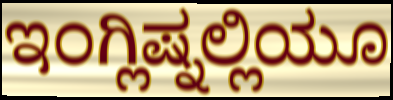
ಇಂಗ್ಲಿಷ್ನಲ್ಲಿಯೂ